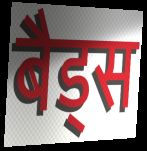
बैड्स